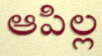
ఆపిల్ల